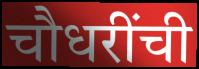
चौधरींची